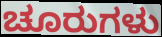
ಚೂರುಗಳು